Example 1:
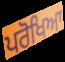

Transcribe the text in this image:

ਪਰੋਖਿਆ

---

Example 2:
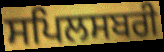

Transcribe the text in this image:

ਸਪਿਲਸਬਰੀ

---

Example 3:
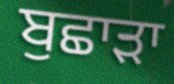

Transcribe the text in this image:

ਬੁਛਾੜਾ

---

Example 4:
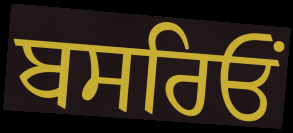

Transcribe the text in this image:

ਬਸਰਿਓਂ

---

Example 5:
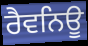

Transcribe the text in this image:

ਰੈਵਨਿਊ